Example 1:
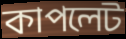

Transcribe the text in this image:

কাপলেট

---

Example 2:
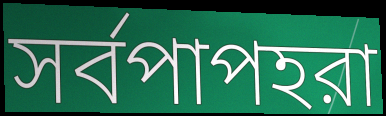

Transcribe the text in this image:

সর্বপাপহরা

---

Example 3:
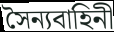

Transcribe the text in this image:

সৈন্যবাহিনী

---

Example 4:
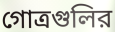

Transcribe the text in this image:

গোত্রগুলির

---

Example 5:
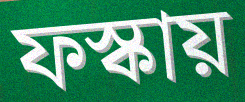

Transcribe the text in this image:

ফস্কায়